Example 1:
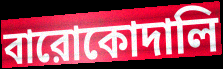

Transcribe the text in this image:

বারোকোদালি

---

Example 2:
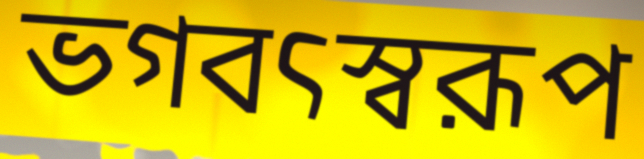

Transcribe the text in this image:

ভগবৎস্বরূপ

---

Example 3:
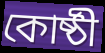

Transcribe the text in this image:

কোষ্ঠী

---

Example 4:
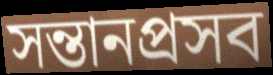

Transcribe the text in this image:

সন্তানপ্রসব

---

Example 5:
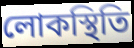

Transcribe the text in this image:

লোকস্থিতি